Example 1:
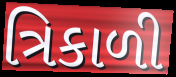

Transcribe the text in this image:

ત્રિકાળી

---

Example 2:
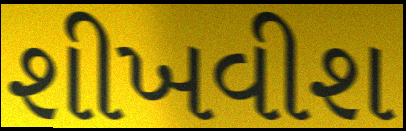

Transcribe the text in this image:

શીખવીશ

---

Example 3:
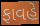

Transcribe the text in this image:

ફાવહે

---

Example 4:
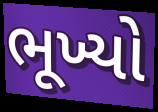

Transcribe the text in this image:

ભૂખ્યો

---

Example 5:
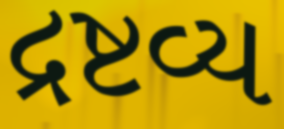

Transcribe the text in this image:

દ્રષ્ટવ્ય